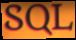
SQL